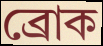
ব্রোক